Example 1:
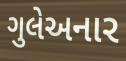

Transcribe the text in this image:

ગુલેઅનાર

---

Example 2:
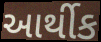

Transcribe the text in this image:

આર્થીક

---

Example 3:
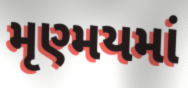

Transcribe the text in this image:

મૃણ્મયમાં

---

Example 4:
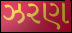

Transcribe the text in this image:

ઝરણ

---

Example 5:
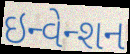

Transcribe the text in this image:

ઇન્વેન્શન